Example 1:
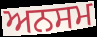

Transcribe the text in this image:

ਅਨਸਮ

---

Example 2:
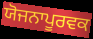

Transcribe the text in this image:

ਯੋਜਨਾਪੂਰਵਕ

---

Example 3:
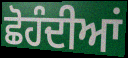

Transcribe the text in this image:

ਛੋਹੰਦੀਆਂ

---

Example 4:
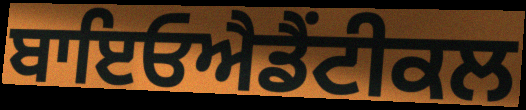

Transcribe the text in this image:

ਬਾਇਓਐਡੈਂਟੀਕਲ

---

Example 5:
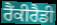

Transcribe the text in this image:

ਰੈਂਕੀਰੈਡੀ